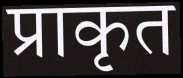
प्राकृत